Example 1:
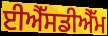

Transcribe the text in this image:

ਈਐੱਸਡੀਐੱਮ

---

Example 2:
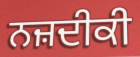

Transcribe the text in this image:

ਨਜ਼ਦੀਕੀ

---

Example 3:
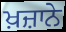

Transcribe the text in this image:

ਖ਼ਜ਼ਾਨੇ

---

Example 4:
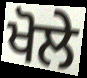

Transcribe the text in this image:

ਖੋਲੇ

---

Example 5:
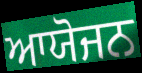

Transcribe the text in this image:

ਆਯੋਜਨ